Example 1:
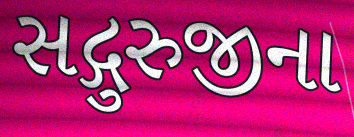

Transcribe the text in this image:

સદ્ગુરુજીના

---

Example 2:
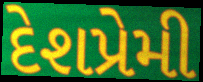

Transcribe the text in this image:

દેશપ્રેમી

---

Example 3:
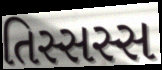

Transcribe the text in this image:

તિસ્સસ્સ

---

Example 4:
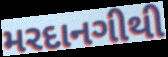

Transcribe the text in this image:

મરદાનગીથી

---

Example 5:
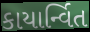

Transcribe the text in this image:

કાયાર્ન્વિત